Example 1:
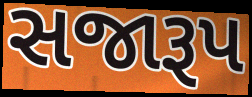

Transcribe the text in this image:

સજારૂપ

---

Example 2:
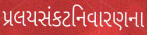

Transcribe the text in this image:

પ્રલયસંકટનિવારણના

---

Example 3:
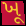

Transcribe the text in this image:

ખૂ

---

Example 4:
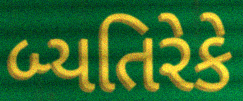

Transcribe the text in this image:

બ્યતિરેકે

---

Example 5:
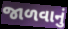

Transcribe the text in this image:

જાળવાનું